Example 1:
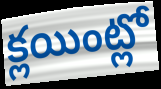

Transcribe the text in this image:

క్లయింట్లో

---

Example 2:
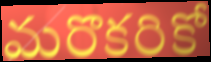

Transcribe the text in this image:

మరొకరికో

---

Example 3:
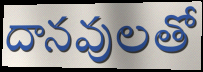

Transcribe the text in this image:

దానవులతో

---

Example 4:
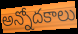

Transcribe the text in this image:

అన్నోదకాలు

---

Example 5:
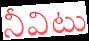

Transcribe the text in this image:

నీవిటు